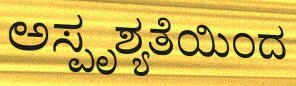
ಅಸ್ಪೃಶ್ಯತೆಯಿಂದ